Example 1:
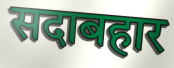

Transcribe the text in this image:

सदाबहार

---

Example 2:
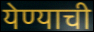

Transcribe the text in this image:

येण्याची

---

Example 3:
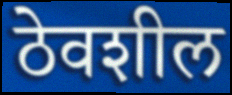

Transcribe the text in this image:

ठेवशील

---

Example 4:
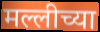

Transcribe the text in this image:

मल्लीच्या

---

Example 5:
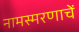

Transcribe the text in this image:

नामस्मरणाचें